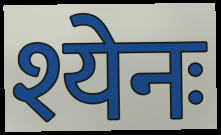
श्येनः